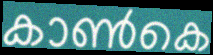
കാൺകെ